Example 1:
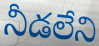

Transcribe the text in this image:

నీడలేని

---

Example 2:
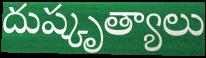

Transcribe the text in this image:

దుష్కృత్యాలు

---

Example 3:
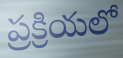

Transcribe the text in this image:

ప్రక్రియలో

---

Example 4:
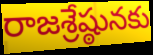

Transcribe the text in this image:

రాజశ్రేష్ఠునకు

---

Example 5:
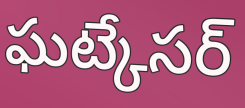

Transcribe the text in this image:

ఘట్కేసర్